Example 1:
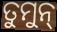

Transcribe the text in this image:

ତୁମୁନ୍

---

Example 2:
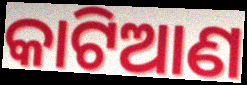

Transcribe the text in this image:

କାଟିଆଣ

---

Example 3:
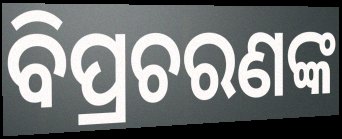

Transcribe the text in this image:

ବିପ୍ରଚରଣଙ୍କ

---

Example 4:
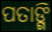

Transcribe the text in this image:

ପତାଙ୍ଗି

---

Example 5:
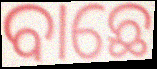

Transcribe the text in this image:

ବାଛେ